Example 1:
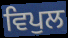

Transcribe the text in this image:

ਵਿਪੁਲ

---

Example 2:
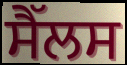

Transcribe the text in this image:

ਸੈੱਲਸ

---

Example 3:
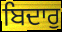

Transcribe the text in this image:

ਬਿਦਾਰੁ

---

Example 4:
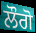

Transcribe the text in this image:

ਲੌਗੋ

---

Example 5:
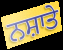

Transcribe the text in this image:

ਨਸ਼ਾਤੇ